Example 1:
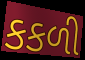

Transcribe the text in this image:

કકળી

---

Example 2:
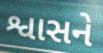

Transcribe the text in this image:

શ્વાસને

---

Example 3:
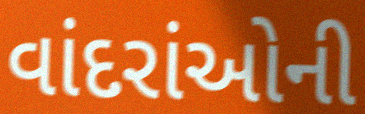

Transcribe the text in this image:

વાંદરાંઓની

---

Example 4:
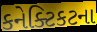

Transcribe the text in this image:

કનેક્ટિકટના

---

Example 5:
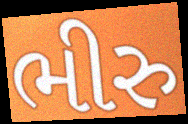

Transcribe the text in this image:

ભીરુ